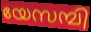
യേസമ്പി